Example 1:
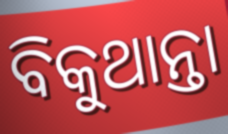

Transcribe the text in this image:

ବିକୁଥାନ୍ତା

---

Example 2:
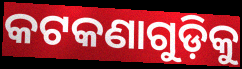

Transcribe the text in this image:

କଟକଣାଗୁଡ଼ିକୁ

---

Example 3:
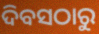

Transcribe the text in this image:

ଦିବସଠାରୁ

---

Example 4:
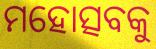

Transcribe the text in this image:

ମହୋତ୍ସବକୁ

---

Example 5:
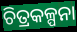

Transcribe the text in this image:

ଚିତ୍ରକଳ୍ପନା